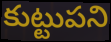
కుట్టుపని